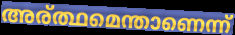
അര്ത്ഥമെന്താണെന്ന്